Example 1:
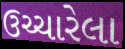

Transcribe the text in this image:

ઉચ્ચારેલા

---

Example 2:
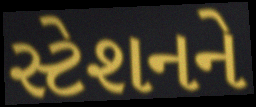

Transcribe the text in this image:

સ્ટેશનને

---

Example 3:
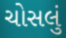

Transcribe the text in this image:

ચોસલું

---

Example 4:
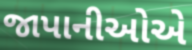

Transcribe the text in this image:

જાપાનીઓએ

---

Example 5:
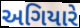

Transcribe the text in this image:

અગિયારે